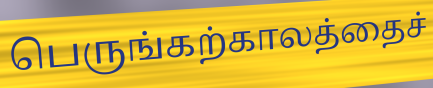
பெருங்கற்காலத்தைச்